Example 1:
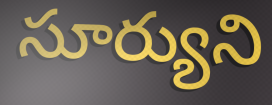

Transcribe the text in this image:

సూర్యుని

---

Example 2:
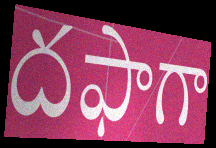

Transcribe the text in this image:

దఫాగా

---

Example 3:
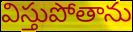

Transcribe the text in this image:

విస్తుపోతాను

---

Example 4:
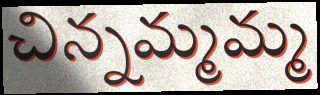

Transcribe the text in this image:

చిన్నమ్మమ్మ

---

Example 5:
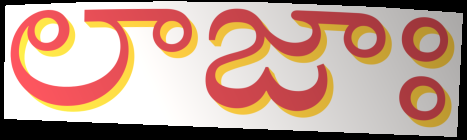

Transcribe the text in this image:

లాజాః